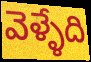
వెళ్ళేది